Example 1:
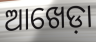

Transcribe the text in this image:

ଆଖେଡ଼ା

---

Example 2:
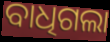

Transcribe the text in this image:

ବାଧିଗଲା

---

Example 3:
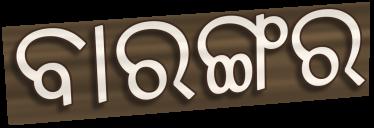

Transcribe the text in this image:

ବାରଙ୍ଗର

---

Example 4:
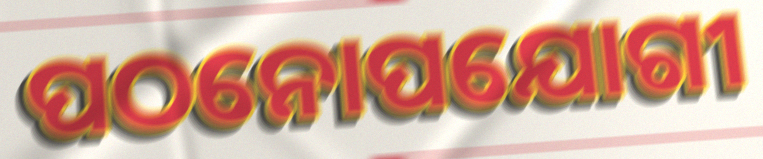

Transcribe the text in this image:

ପଠନୋପଯୋଗୀ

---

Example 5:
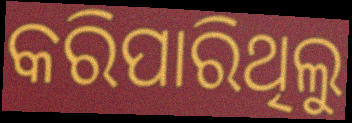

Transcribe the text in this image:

କରିପାରିଥିଲୁ